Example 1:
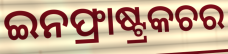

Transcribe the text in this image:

ଇନଫ୍ରାଷ୍ଟ୍ରକଚର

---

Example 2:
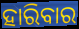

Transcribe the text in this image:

ହାରିବାର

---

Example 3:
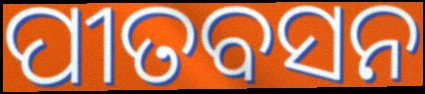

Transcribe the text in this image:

ପୀତବସନ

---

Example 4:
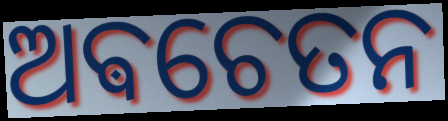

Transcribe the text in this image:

ଅଵଚେତନ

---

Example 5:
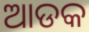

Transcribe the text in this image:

ଆଡକ